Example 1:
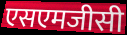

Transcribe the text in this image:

एसएमजीसी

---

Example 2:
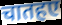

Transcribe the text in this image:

चातहए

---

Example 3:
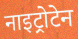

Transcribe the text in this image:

नाइट्रोटेन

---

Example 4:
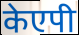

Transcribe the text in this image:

केएपी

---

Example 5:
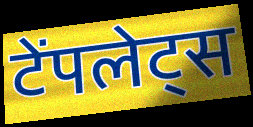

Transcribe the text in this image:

टेंपलेट्स